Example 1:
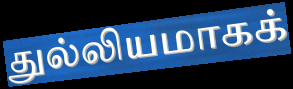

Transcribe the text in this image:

துல்லியமாகக்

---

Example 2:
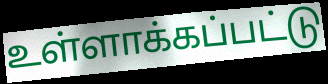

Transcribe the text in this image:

உள்ளாக்கப்பட்டு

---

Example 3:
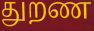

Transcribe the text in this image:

துறண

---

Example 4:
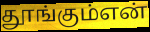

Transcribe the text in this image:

தூங்கும்என்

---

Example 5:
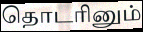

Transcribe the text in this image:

தொடரினும்